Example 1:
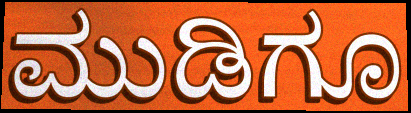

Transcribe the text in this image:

ಮುಡಿಗೂ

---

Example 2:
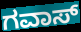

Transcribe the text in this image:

ಗವಾಸ್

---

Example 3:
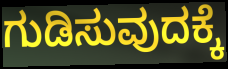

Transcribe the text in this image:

ಗುಡಿಸುವುದಕ್ಕೆ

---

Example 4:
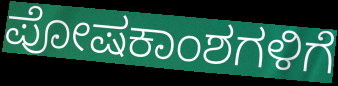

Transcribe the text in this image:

ಪೋಷಕಾಂಶಗಳಿಗೆ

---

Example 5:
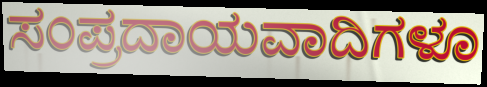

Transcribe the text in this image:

ಸಂಪ್ರದಾಯವಾದಿಗಳೂ